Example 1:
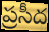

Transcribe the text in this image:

ప్రసీద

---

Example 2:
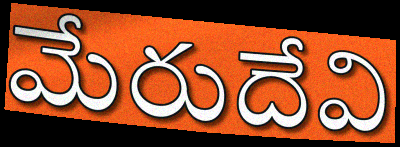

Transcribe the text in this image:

మేరుదేవి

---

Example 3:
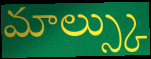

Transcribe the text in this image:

మాల్స్కు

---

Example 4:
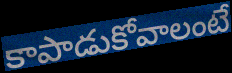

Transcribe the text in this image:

కాపాడుకోవాలంటే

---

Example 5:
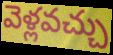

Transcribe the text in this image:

వెళ్లవచ్చు